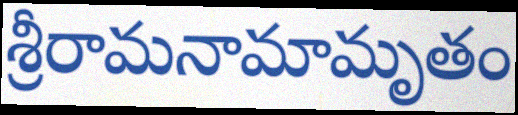
శ్రీరామనామామృతం